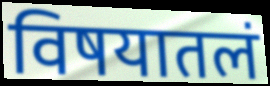
विषयातलं